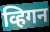
व्हिगन